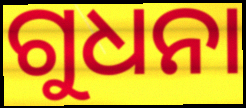
ଗୁଧନା